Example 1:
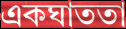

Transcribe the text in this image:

একঘাততা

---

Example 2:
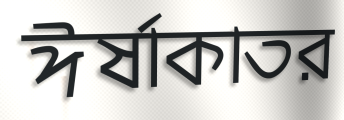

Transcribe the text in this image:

ঈর্ষাকাতর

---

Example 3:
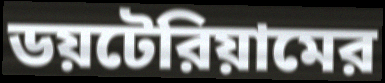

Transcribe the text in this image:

ডয়টেরিয়ামের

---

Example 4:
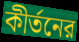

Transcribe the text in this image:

কীর্তনের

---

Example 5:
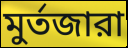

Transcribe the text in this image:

মুর্তজারা